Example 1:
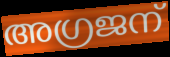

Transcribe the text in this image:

അഗ്രജന്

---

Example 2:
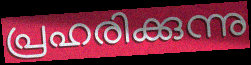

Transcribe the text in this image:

പ്രഹരിക്കുന്നു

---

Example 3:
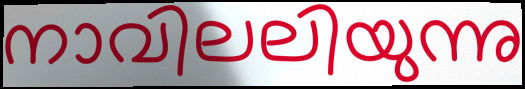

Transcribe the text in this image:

നാവിലലിയുന്നു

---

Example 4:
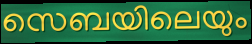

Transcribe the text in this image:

സെബയിലെയും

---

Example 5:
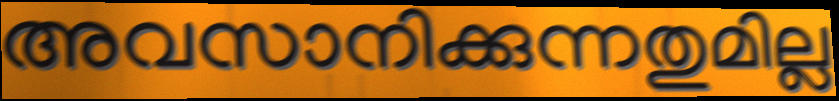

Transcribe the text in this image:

അവസാനിക്കുന്നതുമില്ല